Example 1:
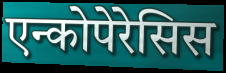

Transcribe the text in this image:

एन्कोपेरेसिस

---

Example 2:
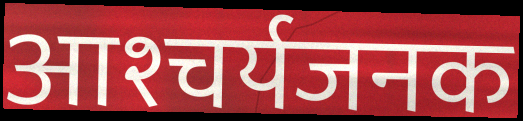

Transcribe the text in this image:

आश्चर्यजनक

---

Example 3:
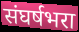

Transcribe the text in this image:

संघर्षभरा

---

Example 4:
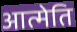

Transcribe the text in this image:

आत्मेति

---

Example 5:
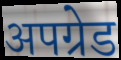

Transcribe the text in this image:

अपग्रेड